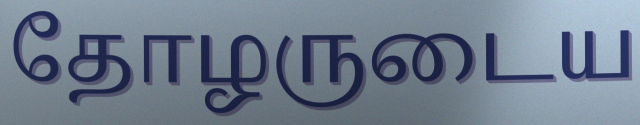
தோழருடைய